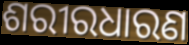
ଶରୀରଧାରଣ